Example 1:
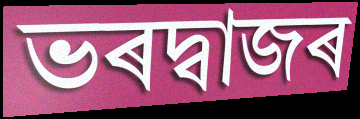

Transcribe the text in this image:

ভৰদ্বাজৰ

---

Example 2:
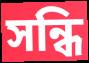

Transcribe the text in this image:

সন্ধি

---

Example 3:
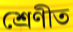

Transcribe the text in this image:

শ্ৰেণীত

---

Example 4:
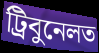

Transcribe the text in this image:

ট্ৰিবুনেলত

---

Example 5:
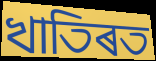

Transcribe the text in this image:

খাতিৰত